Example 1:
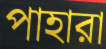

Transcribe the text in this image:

পাহারা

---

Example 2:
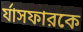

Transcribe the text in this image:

র্যাসফারকে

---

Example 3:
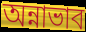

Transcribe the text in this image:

অন্নাভাব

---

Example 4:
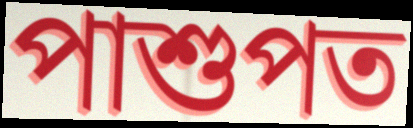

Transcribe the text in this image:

পাশুপত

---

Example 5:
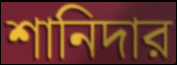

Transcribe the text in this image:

শানিদার